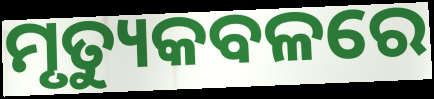
ମୃତ୍ୟୁକବଳରେ